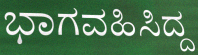
ಭಾಗವಹಿಸಿದ್ದ